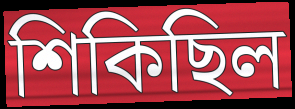
শিকিছিল